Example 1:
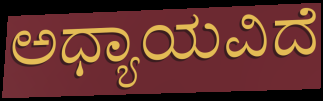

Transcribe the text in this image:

ಅಧ್ಯಾಯವಿದೆ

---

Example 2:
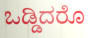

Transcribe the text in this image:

ಒಡ್ಡಿದರೊ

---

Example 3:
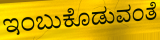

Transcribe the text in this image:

ಇಂಬುಕೊಡುವಂತೆ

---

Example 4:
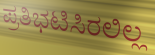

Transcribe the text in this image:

ಪ್ರತಿಭಟಿಸಿರಲಿಲ್ಲ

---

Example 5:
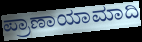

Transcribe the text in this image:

ಪ್ರಾಣಾಯಾಮಾದಿ